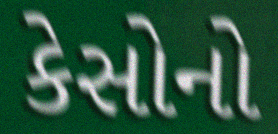
કેસોનો